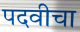
पदवीचा